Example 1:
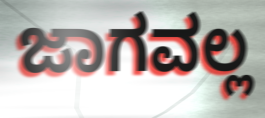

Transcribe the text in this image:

ಜಾಗವಲ್ಲ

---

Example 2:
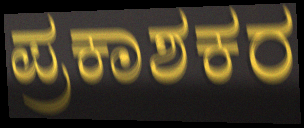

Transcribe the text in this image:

ಪ್ರಕಾಶಕರ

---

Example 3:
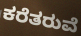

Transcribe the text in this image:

ಕರೆತರುವೆ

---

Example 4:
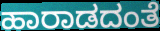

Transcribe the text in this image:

ಹಾರಾಡದಂತೆ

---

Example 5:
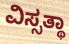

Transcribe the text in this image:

ವಿಸ್ಸತ್ಥಾ